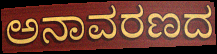
ಅನಾವರಣದ